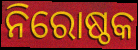
ନିରୋଷ୍ଠକ